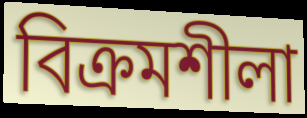
বিক্ৰমশীলা